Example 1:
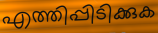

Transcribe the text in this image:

എത്തിപ്പിടിക്കുക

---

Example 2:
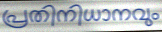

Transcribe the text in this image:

പ്രതിനിധാനവും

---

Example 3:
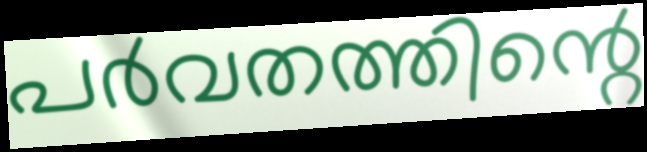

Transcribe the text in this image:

പർവതത്തിന്റെ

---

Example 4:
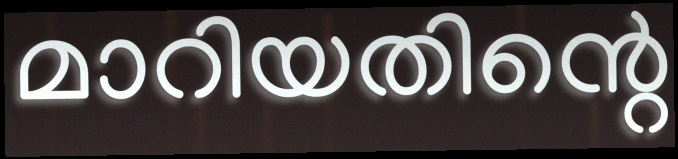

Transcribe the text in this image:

മാറിയതിന്റെ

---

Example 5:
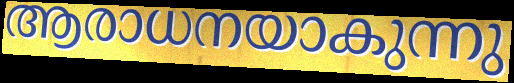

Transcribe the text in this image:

ആരാധനയാകുന്നു